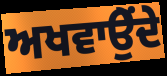
ਅਖਵਾਉੇਂਦੇ